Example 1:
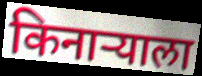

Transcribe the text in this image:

किनाऱ्याला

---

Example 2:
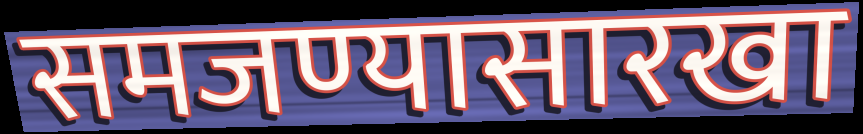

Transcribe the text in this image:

समजण्यासारखा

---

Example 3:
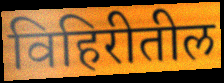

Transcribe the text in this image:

विहिरीतील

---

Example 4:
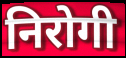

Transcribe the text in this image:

निरोगी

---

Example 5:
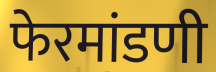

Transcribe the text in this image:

फेरमांडणी